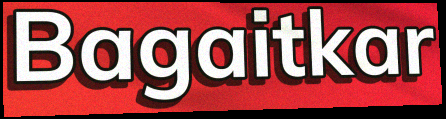
Bagaitkar